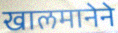
खालमानेने